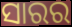
ସାରର